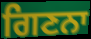
ਗਿਣਨਾ